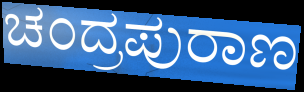
ಚಂದ್ರಪುರಾಣ